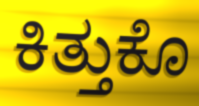
ಕಿತ್ತುಕೊ